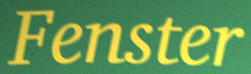
Fenster